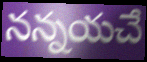
నన్నయచే